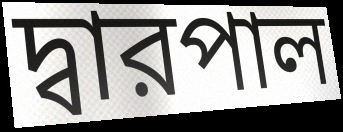
দ্বারপাল